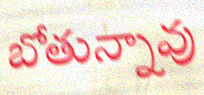
బోతున్నావు